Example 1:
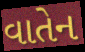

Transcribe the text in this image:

વાતેન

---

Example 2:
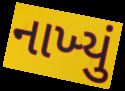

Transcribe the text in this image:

નાખ્‍યું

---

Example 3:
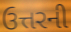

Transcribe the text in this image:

ઉત્તરની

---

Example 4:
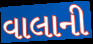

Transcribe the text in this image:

વાલાની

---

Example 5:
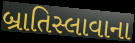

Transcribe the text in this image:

બ્રાતિસ્લાવાના